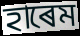
হাৰেম